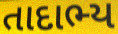
તાદાભ્ય